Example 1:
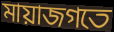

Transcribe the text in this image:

মায়াজগতে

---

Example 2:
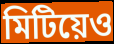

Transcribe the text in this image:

মিটিয়েও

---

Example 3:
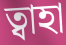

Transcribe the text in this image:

ত্বাহা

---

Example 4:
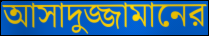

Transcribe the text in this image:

আসাদুজ্জামানের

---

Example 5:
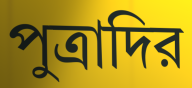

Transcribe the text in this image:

পুত্রাদির